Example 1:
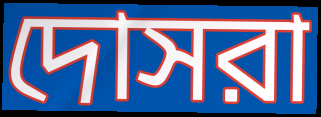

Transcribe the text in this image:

দোসরা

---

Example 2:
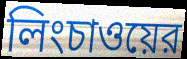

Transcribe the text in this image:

লিংচাওয়ের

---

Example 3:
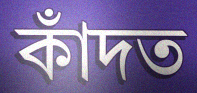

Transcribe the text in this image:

কাঁদত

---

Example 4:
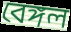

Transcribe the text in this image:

বেঙ্গল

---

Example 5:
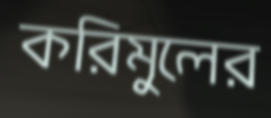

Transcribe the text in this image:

করিমুলের